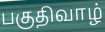
பகுதிவாழ்